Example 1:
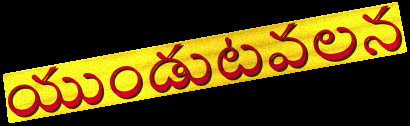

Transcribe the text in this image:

యుండుటవలన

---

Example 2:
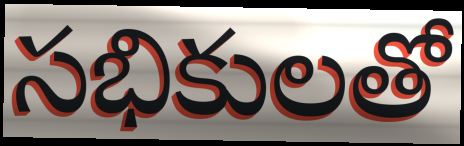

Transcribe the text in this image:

సభికులతో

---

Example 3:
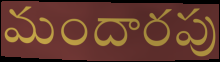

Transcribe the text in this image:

మందారపు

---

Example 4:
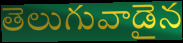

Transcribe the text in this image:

తెలుగువాడైన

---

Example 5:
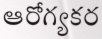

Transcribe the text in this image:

ఆరోగ్యకర